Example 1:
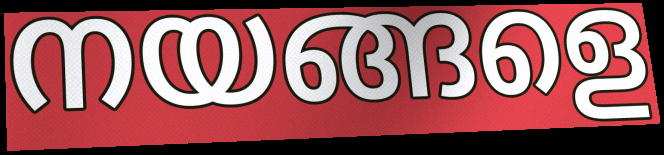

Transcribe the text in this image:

നയങ്ങളെ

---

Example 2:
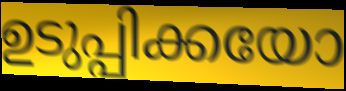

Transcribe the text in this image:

ഉടുപ്പിക്കയോ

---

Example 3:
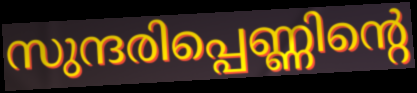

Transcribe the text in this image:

സുന്ദരിപ്പെണ്ണിന്റെ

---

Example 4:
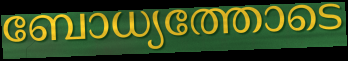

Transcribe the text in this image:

ബോധ്യത്തോടെ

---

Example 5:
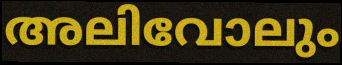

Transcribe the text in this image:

അലിവോലും